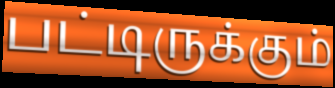
பட்டிருக்கும்